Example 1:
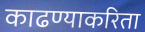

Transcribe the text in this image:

काढण्याकरिता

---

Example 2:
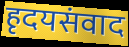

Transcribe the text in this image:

हृदयसंवाद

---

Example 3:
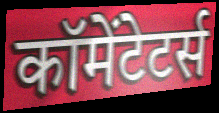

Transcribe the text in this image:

कॉमेंटेटर्स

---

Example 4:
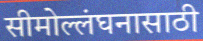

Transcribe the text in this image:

सीमोल्लंघनासाठी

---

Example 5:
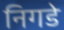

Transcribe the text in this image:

निगडे